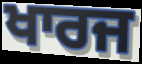
ਖਾਰਜ